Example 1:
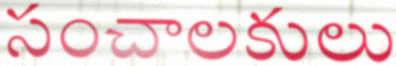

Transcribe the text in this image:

సంచాలకులు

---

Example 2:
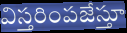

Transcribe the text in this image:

విస్తరింపజేస్తూ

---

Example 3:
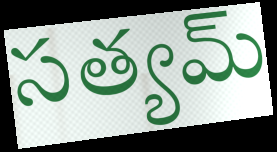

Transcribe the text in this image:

సత్యమ్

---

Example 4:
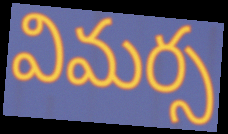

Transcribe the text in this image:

విమర్స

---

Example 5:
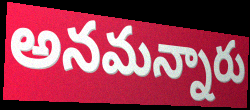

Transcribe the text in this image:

అనమన్నారు